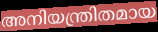
അനിയന്ത്രിതമായ